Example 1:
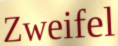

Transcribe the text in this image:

Zweifel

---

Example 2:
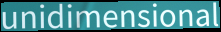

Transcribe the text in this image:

unidimensional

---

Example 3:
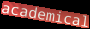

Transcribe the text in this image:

academical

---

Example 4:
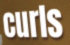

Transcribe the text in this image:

curls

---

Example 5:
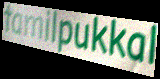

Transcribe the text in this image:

tamilpukkal